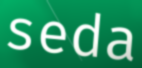
seda